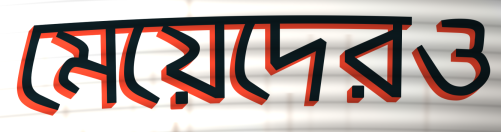
মেয়েদেরও